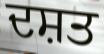
ਦਸ਼ਤ